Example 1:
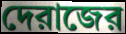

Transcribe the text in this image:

দেরাজের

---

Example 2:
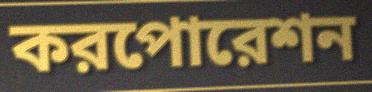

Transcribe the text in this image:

করপোরেশন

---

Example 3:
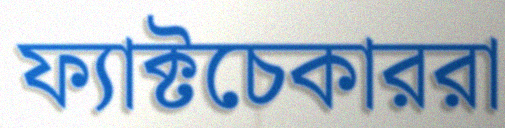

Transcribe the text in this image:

ফ্যাক্টচেকাররা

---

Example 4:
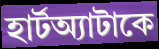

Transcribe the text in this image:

হার্টঅ্যাটাকে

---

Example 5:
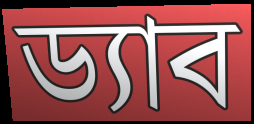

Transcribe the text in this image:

ড্যাব